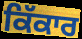
ਕਿੱਕਾਰ